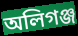
অলিগঞ্জ